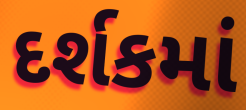
દર્શકમાં